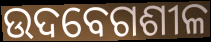
ଉଦବେଗଶୀଳ